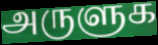
அருளுக